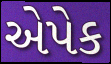
એપેક